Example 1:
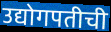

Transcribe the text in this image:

उद्योगपतीची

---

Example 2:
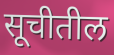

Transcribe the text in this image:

सूचीतील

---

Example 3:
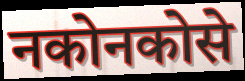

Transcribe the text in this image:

नकोनकोसे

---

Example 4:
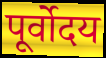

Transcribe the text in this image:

पूर्वोदय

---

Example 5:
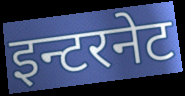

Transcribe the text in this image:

इन्टरनेट